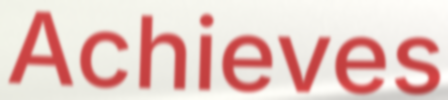
Achieves